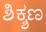
ಶಿಕ್ಶಣ